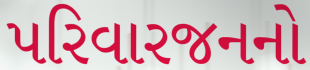
પરિવારજનનો